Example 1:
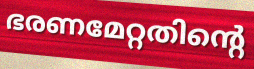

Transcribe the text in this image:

ഭരണമേറ്റതിന്റെ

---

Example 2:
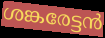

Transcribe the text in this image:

ശങ്കരേട്ടൻ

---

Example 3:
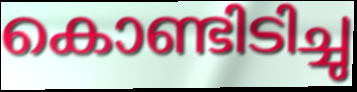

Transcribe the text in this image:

കൊണ്ടിടിച്ചു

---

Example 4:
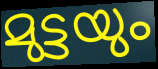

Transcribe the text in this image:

മുട്ടയും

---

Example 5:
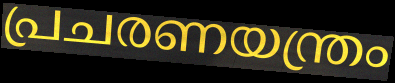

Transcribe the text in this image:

പ്രചരണയന്ത്രം